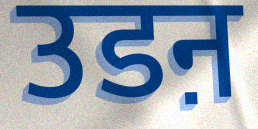
उडऩ